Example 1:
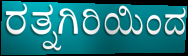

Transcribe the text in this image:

ರತ್ನಗಿರಿಯಿಂದ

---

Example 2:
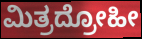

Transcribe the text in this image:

ಮಿತ್ರದ್ರೋಹೀ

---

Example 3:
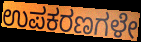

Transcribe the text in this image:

ಉಪಕರಣಗಳೇ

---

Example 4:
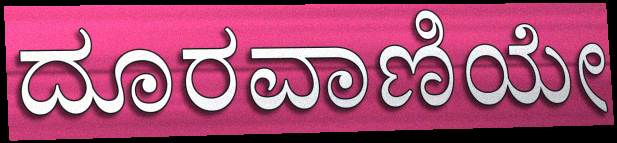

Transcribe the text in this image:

ದೂರವಾಣಿಯೇ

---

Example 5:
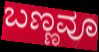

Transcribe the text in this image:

ಬಣ್ಣವೂ